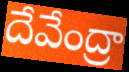
దేవేంద్రా